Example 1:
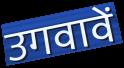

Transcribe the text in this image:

उगवावें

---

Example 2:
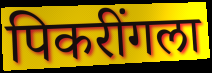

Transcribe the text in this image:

पिकरींगला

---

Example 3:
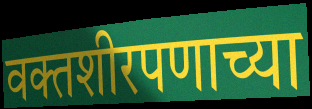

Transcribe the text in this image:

वक्तशीरपणाच्या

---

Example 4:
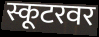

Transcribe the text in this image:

स्कूटरवर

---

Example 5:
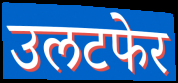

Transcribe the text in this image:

उलटफेर